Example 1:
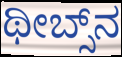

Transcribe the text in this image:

ಥೀಬ್ಸ್‌ನ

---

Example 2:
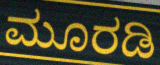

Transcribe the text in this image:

ಮೂರಡಿ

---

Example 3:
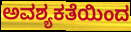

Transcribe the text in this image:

ಅವಶ್ಯಕತೆಯಿಂದ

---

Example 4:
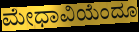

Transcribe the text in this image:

ಮೇಧಾವಿಯೆಂದೂ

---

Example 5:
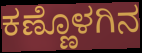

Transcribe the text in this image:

ಕಣ್ಣೊಳಗಿನ